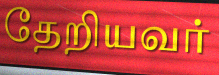
தேறியவர்